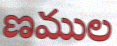
ణముల